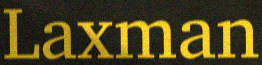
Laxman